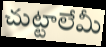
చుట్టాలేమీ